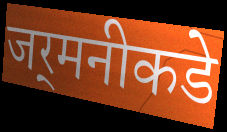
जर्मनीकडे